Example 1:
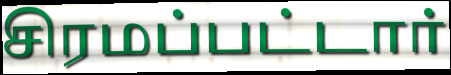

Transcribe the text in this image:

சிரமப்பட்டார்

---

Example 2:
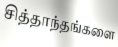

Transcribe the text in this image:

சித்தாந்தங்களை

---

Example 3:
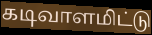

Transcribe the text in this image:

கடிவாளமிட்டு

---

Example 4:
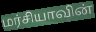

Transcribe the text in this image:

மர்சியாவின்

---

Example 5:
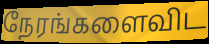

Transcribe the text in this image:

நேரங்களைவிட